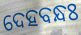
ଦେହବନ୍ଧଃ